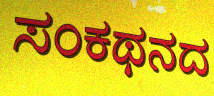
ಸಂಕಥನದ